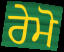
ਰੇਮੋ